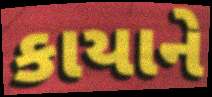
કાયાને